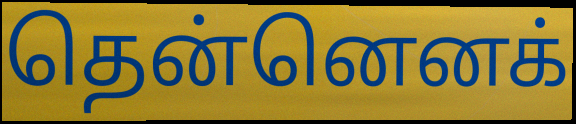
தென்னெனக்